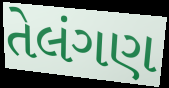
તેલંગણ